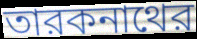
তারকনাথের